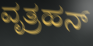
ವೃತ್ರಹನ್